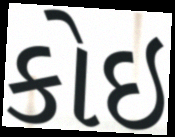
કોઇ